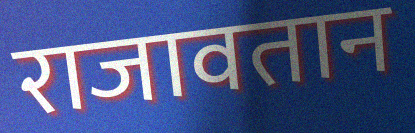
राजावतान